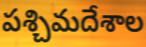
పశ్చిమదేశాల